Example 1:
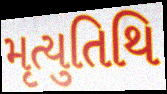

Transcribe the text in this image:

મૃત્યુતિથિ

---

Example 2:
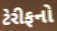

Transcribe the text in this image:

ટેરીફનો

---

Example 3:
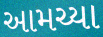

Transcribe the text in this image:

આમચ્યા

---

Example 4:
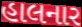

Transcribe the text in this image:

હાલનાર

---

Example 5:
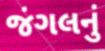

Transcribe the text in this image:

જંગલનું